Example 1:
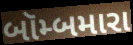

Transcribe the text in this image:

બૉમ્બમારા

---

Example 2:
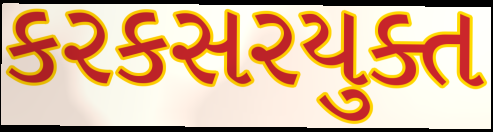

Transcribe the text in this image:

કરકસરયુક્ત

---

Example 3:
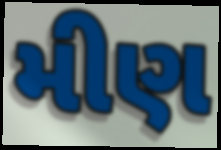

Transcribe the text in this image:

મીણ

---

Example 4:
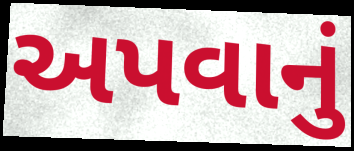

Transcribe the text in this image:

અપવાનું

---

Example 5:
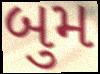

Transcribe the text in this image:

બુમ